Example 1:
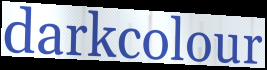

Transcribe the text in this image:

darkcolour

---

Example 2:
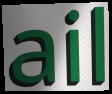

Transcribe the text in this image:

ail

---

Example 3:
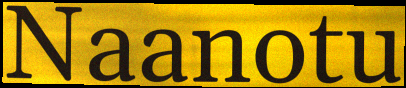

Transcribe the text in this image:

Naanotu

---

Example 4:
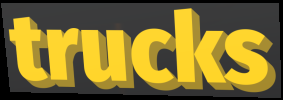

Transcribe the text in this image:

trucks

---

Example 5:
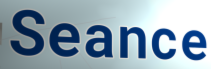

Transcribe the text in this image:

Seance